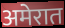
अमेरात